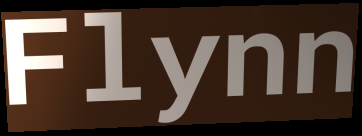
Flynn